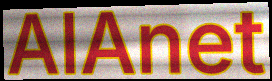
AIAnet